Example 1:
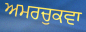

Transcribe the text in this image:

ਅਮਰਚੁਕਵਾ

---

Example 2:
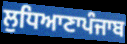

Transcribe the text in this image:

ਲੁਧਿਆਣਾਪੰਜਾਬ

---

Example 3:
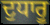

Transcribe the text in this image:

ਦੁਧਾਰੂ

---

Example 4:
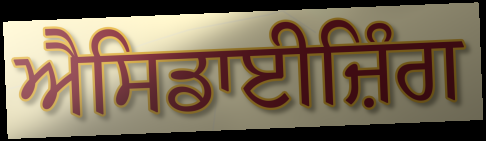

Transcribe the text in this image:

ਐਸਿਡਾਈਜ਼ਿੰਗ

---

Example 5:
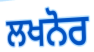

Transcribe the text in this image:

ਲਖਨੋਰ